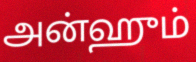
அன்ஹும்